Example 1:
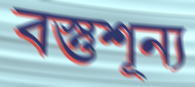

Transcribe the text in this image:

বস্তুশূন্য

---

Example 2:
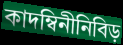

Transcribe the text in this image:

কাদম্বিনীনিবিড়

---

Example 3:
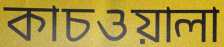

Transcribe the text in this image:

কাচওয়ালা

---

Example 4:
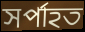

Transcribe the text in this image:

সর্পাহত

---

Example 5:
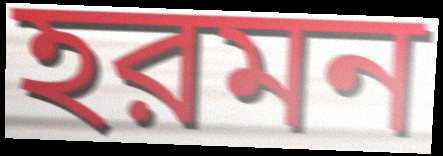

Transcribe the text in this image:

হরমন